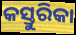
କସ୍ତୁରିକା